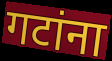
गटांना